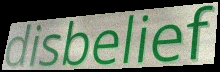
disbelief